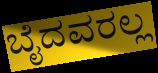
ಬೈದವರಲ್ಲ